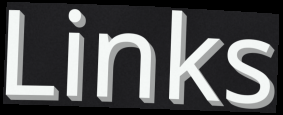
Links